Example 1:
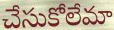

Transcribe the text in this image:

చేసుకోలేమా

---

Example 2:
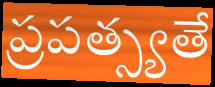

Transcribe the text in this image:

ప్రపత్స్యతే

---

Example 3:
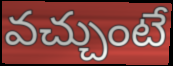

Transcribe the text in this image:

వచ్చుంటే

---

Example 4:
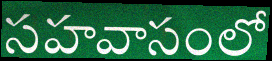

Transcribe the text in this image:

సహవాసంలో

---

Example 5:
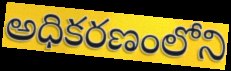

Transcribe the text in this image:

అధికరణంలోని